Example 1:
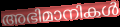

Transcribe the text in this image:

അഭിമാനികൾ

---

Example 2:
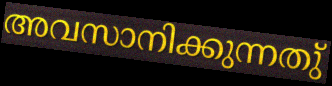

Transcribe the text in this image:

അവസാനിക്കുന്നതു്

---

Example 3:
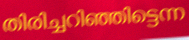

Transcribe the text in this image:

തിരിച്ചറിഞ്ഞിട്ടെന്ന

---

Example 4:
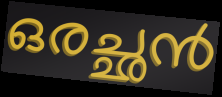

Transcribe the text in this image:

ഒരച്ഛൻ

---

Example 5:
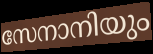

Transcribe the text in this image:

സേനാനിയും